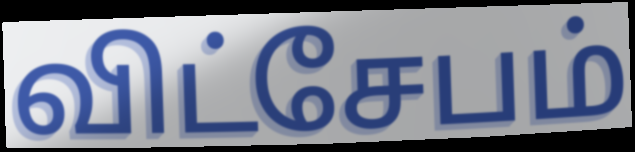
விட்சேபம்